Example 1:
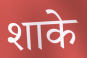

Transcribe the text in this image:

शाके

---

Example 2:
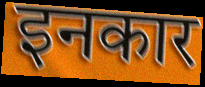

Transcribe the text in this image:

इनकार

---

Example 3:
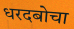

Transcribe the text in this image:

धरदबोचा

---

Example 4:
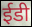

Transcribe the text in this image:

ईडी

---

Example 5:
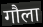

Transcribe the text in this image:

गौला